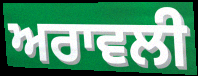
ਅਰਾਵਲੀ